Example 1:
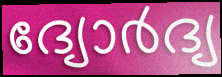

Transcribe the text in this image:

ദ്യോർദ്യ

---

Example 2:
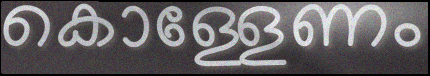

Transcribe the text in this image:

കൊള്ളേണം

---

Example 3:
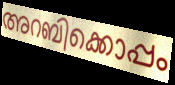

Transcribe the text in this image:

അറബിക്കൊപ്പം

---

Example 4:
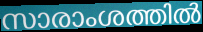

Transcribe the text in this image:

സാരാംശത്തിൽ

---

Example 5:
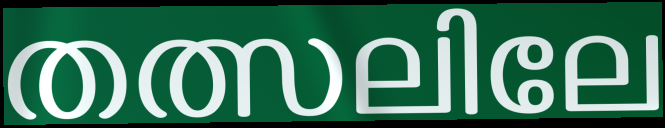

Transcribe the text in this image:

തത്സലിലേ